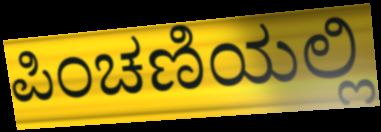
ಪಿಂಚಣಿಯಲ್ಲಿ